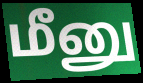
மீனு